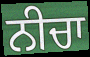
ਨੀਚਾ